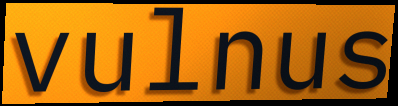
vulnus